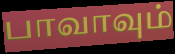
பாவாவும்